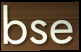
bse